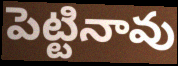
పెట్టినావు